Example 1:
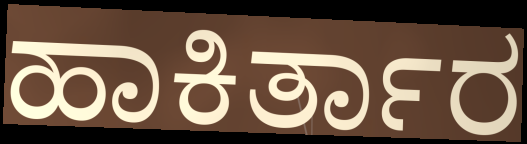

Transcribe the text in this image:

ಹಾಕಿರ್ತಾರ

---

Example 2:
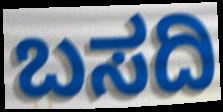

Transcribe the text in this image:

ಬಸದಿ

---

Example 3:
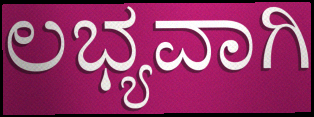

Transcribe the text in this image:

ಲಭ್ಯವಾಗಿ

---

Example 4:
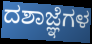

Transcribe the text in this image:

ದಶಾಜ್ಞೆಗಳ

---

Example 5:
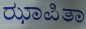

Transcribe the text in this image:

ಝಾಪಿತಾ